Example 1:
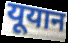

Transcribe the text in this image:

यूयान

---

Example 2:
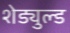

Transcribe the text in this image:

शेड्युल्ड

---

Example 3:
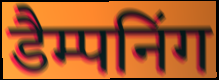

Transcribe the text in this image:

डैम्पनिंग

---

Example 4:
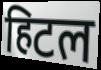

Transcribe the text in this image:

हिटल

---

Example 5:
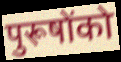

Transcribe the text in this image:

पुरूषोंको